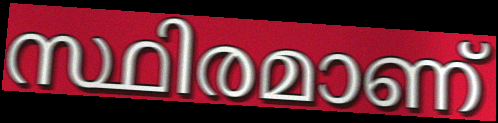
സ്ഥിരമാണ്